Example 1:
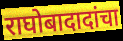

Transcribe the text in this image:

राघोबादादांचा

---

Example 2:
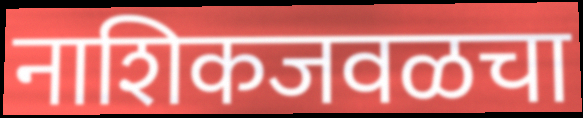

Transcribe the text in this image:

नाशिकजवळचा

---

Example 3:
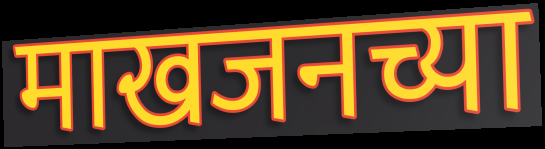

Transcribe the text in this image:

माखजनच्या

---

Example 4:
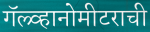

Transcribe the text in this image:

गॅल्व्हानोमीटराची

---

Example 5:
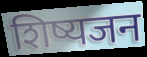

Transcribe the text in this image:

शिष्यजन